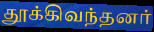
தூக்கிவந்தனர்